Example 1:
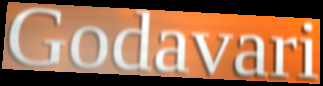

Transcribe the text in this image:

Godavari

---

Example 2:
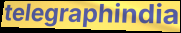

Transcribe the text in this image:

telegraphindia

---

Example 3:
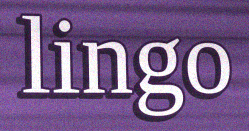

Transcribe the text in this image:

lingo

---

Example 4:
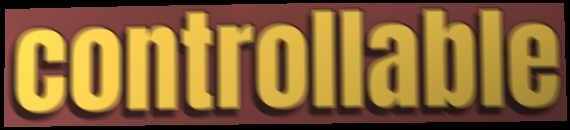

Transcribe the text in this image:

controllable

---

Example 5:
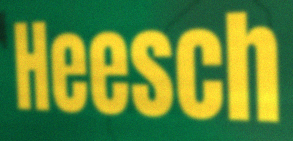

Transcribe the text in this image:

Heesch